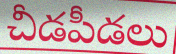
చీడపీడలు